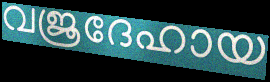
വജ്രദേഹായ